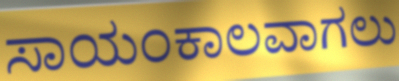
ಸಾಯಂಕಾಲವಾಗಲು